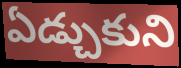
ఏడ్చుకుని